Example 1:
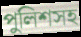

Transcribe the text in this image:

পুলিশসহ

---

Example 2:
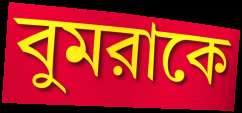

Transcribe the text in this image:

বুমরাকে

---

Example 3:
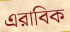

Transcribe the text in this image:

এরাবিক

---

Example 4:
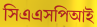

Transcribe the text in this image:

সিএএসপিআই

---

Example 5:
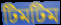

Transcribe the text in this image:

টিমটিম